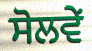
ਸੋਲਵੇਂ